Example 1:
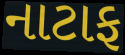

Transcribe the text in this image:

નાટાફ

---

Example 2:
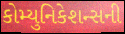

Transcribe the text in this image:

કોમ્યુનિકેશન્સની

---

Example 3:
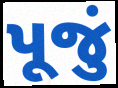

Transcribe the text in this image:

પૂજું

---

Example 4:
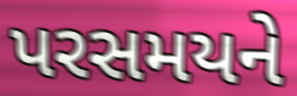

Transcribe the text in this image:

પરસમયને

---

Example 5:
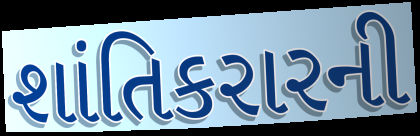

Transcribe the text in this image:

શાંતિકરારની